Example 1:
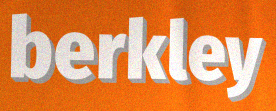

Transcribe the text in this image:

berkley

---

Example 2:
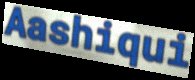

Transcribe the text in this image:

Aashiqui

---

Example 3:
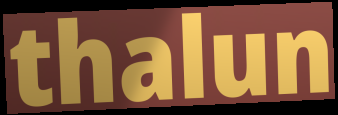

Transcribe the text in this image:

thalun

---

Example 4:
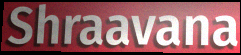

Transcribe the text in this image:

Shraavana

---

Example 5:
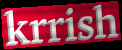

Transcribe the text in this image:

krrish